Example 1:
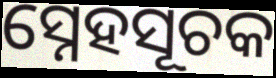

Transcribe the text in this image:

ସ୍ନେହସୂଚକ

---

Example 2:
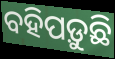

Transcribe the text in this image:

ବହିପଡ଼ୁଛି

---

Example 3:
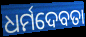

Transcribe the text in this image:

ଧର୍ମଦେବତା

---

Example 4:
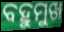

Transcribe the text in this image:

ବହୁମୁଖ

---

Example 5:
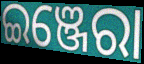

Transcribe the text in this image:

ଇଞ୍ଜେରା